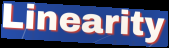
Linearity